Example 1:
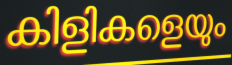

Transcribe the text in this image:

കിളികളെയും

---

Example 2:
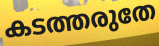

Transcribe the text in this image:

കടത്തരുതേ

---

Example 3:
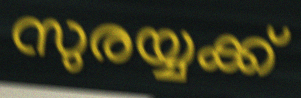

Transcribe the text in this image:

സുരയ്യക്ക്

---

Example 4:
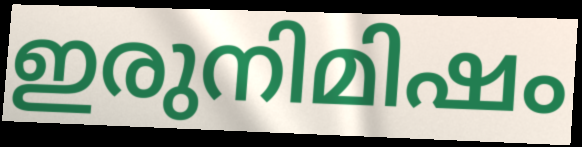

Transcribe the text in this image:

ഇരുനിമിഷം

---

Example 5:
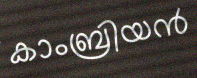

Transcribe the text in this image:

കാംബ്രിയൻ